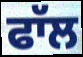
ਫਾੱਲ